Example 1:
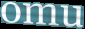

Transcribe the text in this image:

omu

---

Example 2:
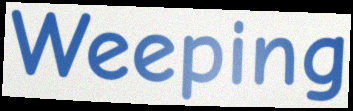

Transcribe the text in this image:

Weeping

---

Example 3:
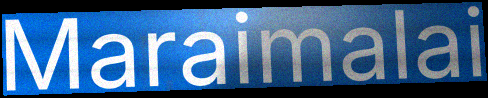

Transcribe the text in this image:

Maraimalai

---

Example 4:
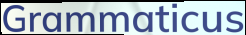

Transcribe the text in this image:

Grammaticus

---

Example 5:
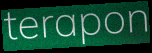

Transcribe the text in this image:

terapon